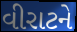
વીરાટને